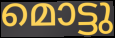
മൊട്ടു